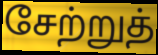
சேற்றுத்